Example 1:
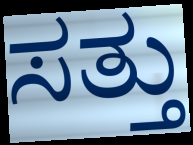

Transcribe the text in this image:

ಸತ್ತು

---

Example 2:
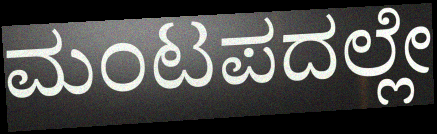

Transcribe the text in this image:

ಮಂಟಪದಲ್ಲೇ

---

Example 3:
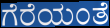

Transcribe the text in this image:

ಗೆರೆಯಂತೆ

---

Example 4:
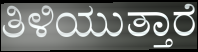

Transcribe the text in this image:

ತಿಳಿಯುತ್ತಾರೆ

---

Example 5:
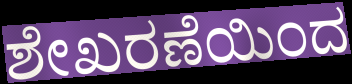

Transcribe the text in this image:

ಶೇಖರಣೆಯಿಂದ